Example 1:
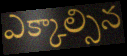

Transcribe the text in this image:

ఎక్కాల్సిన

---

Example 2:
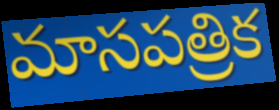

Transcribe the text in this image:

మాసపత్రిక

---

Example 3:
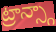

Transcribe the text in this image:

ట్రాన్స్గా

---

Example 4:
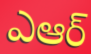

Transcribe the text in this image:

ఎఆర్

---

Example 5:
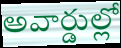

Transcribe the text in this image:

అవార్డుల్లో